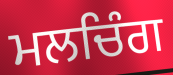
ਮਲਚਿੰਗ